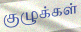
குழுக்கள்